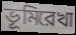
ভূমিরেখা